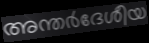
അന്തർദേശീയ